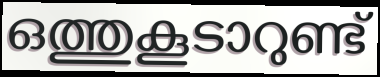
ഒത്തുകൂടാറുണ്ട്